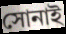
সোনাই